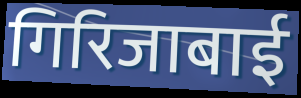
गिरिजाबाई